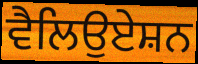
ਵੈਲਿਉਏਸ਼ਨ